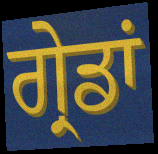
ਗ੍ਰੇਡਾਂ